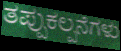
ತಪ್ಪುಕಲ್ಪನೆಗಳು